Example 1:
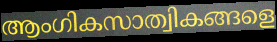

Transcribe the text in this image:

ആംഗികസാത്വികങ്ങളെ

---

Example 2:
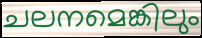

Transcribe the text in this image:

ചലനമെങ്കിലും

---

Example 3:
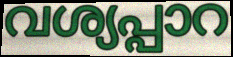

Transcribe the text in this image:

വശ്യപ്പാറ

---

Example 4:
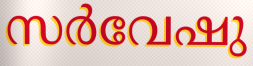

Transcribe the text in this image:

സർവേഷു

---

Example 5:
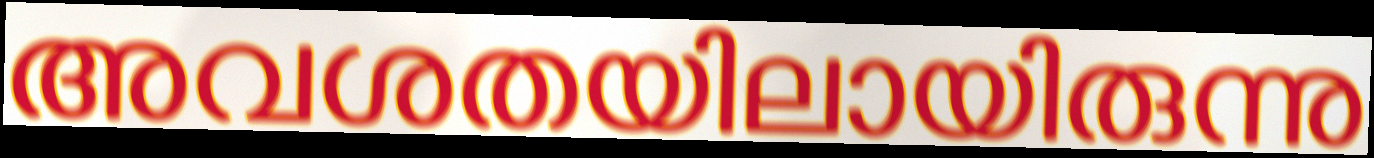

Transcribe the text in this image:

അവശതയിലായിരുന്നു